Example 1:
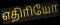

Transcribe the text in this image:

எதிரியோ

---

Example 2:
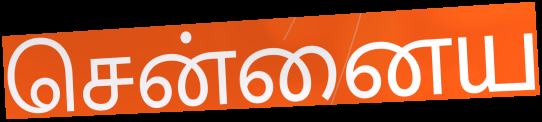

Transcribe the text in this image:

சென்னைய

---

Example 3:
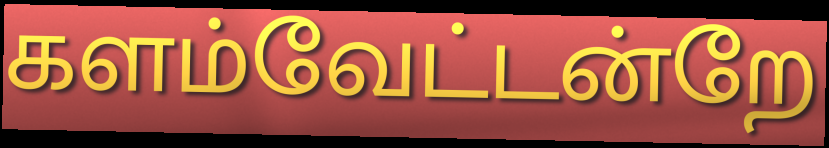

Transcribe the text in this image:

களம்வேட்டன்றே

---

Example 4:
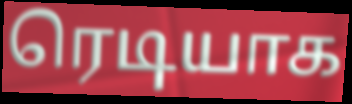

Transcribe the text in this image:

ரெடியாக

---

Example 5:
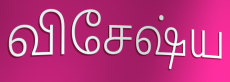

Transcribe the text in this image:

விசேஷ்ய